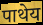
पाथेय